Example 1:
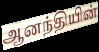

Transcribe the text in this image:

ஆனந்தியின்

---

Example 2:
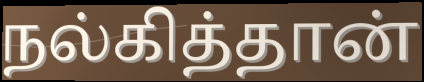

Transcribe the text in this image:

நல்கித்தான்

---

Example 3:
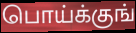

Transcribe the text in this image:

பொய்க்குங்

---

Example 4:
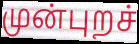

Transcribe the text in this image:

முன்புறச்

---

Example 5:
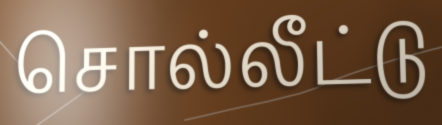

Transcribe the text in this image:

சொல்லீட்டு